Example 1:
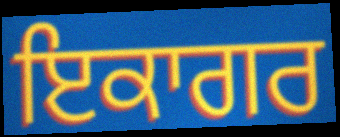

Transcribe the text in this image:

ਇਕਾਗਰ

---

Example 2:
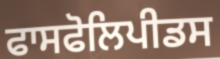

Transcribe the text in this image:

ਫਾਸਫੋਲਿਪੀਡਸ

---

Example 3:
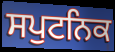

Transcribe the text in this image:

ਸਪੁਟਨਿਕ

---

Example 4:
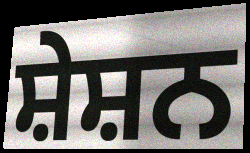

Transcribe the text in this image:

ਸ਼ੇਸ਼ਨ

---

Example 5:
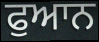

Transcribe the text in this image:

ਫੁਆਨ